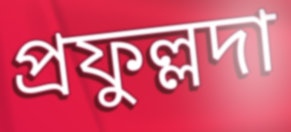
প্রফুল্লদা